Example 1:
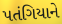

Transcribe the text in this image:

પતંગિયાને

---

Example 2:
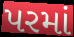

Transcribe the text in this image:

પરમાં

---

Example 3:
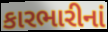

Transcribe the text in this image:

કારભારીનાં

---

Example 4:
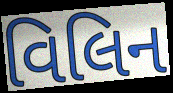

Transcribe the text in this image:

વિલિન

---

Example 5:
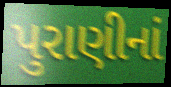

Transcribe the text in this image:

પુરાણીનાં